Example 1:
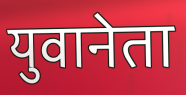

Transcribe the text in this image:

युवानेता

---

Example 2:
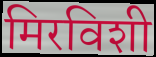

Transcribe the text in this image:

मिरविशी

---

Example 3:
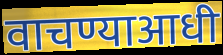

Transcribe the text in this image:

वाचण्याआधी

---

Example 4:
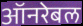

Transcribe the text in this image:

ऑनरेबल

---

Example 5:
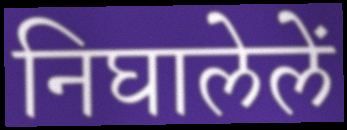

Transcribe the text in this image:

निघालेलें